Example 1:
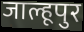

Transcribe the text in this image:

जाल्हूपुर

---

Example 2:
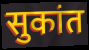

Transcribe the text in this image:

सुकांत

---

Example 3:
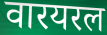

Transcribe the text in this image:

वारयरल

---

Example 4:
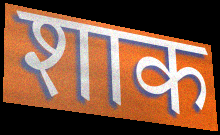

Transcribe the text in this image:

शाक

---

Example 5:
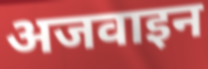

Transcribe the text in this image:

अजवाइन